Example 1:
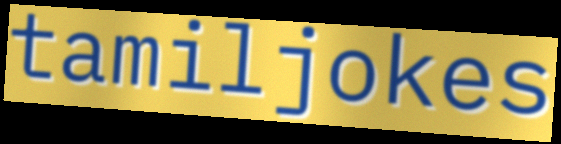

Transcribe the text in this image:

tamiljokes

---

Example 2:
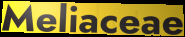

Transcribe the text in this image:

Meliaceae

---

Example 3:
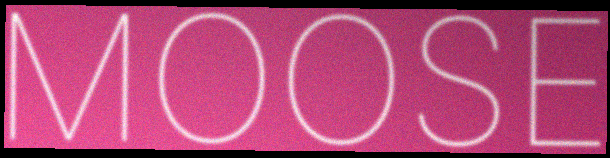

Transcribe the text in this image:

MOOSE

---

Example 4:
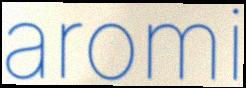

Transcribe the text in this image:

aromi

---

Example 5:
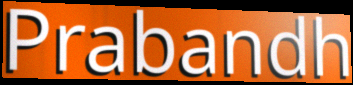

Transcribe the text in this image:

Prabandh